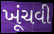
ખૂંચવી